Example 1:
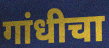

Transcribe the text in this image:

गांधीचा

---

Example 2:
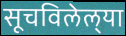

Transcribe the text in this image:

सूचविलेल्या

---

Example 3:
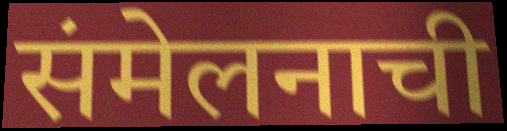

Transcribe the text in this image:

संमेलनाची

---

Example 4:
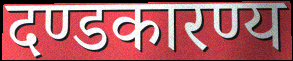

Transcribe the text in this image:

दण्डकारण्य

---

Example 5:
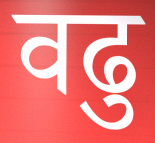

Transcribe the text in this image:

वढु